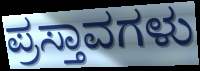
ಪ್ರಸ್ತಾವಗಳು